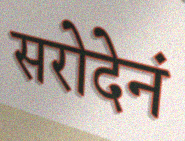
सरोदेनं